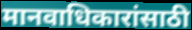
मानवाधिकारांसाठी